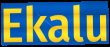
Ekalu